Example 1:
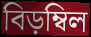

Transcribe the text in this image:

বিড়ম্বিল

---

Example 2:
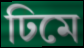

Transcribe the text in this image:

ঢিমে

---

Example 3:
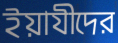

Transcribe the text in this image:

ইয়াযীদের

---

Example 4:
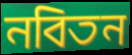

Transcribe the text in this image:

নবিতন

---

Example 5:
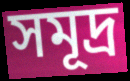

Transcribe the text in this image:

সমূদ্র